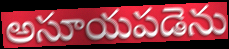
అసూయపడెను